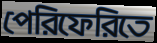
পেরিফেরিতে